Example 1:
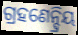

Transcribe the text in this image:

ଗ୍ରହଣେନ୍ଦ୍ରିୟ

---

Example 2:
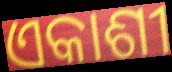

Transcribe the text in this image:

ଏକାଶୀ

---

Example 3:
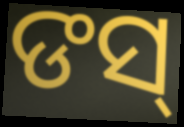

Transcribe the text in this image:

ଙସ୍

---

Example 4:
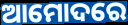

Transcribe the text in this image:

ଆମୋଦରେ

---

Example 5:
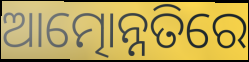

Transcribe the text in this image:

ଆତ୍ମୋନ୍ନତିରେ